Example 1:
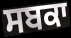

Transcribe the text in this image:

ਸਬਕਾ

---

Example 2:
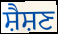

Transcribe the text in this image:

ਸ਼ੈਸ਼ਣ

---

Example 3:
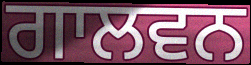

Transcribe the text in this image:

ਗਾਲਵਨ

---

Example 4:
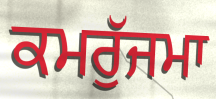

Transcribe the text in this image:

ਕਮਰੁੱਜਮਾ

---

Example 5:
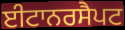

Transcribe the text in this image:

ਈਟਾਨਰਸੈਪਟ